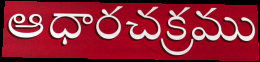
ఆధారచక్రము